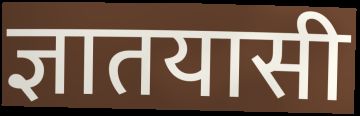
ज्ञातयासी